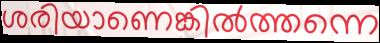
ശരിയാണെങ്കിൽത്തന്നെ